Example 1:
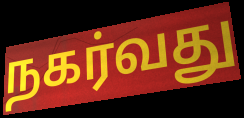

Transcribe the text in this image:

நகர்வது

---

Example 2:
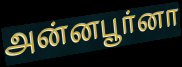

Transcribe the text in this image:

அன்னபூர்னா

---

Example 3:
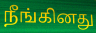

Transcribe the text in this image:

நீங்கினது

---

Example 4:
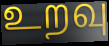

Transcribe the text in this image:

உறவு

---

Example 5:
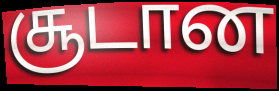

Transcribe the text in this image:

சூடான